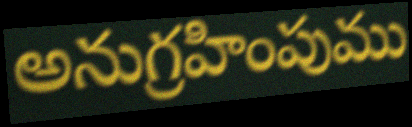
అనుగ్రహింపుము